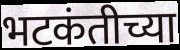
भटकंतीच्या